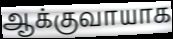
ஆக்குவாயாக